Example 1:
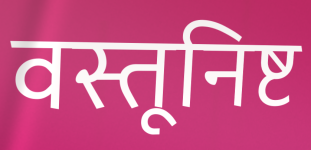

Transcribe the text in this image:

वस्तूनिष्ट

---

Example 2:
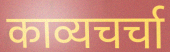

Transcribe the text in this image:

काव्यचर्चा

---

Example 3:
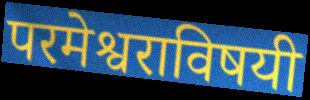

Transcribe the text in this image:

परमेश्वराविषयी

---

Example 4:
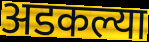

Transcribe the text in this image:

अडकल्या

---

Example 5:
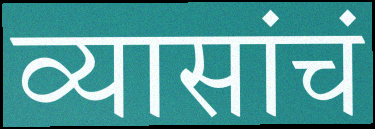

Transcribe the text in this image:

व्यासांचं